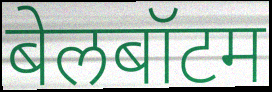
बेलबॉटम